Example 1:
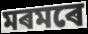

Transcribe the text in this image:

মৰমৰে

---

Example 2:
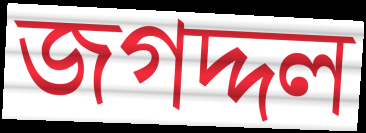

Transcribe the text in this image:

জগদ্দল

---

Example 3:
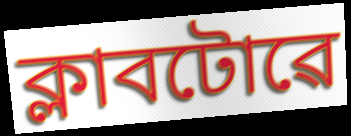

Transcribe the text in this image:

ক্লাবটোৱে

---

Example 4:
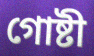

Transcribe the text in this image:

গোষ্টী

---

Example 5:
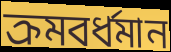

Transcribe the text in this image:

ক্ৰমবৰ্ধমান